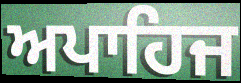
ਅਪਾਹਿਜ